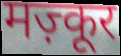
मज़्कूर